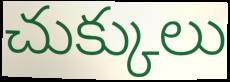
చుక్కులు